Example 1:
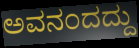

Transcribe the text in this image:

ಅವನಂದದ್ದು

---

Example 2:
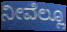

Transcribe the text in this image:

ನೀವೆಲ್ಲೂ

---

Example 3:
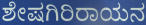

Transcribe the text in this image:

ಶೇಷಗಿರಿರಾಯನ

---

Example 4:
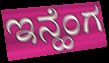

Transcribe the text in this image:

ಇನ್ಹೆಂಗ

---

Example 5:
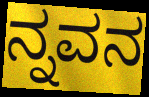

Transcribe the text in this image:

ನ್ನವನ